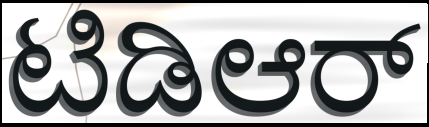
ಟಿಡಿಆರ್